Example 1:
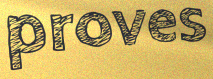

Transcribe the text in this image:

proves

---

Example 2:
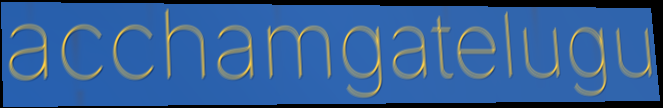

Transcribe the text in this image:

acchamgatelugu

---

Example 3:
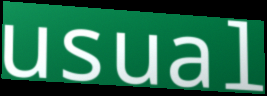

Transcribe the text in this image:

usual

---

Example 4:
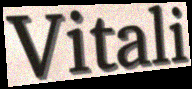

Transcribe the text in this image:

Vitali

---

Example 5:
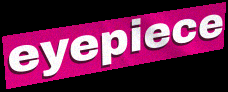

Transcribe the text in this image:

eyepiece